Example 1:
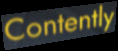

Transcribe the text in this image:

Contently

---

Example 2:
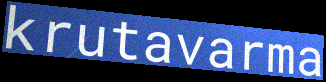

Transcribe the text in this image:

krutavarma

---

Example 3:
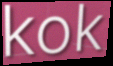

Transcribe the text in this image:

kok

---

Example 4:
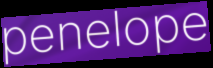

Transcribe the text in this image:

penelope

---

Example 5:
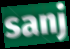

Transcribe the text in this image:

sanj